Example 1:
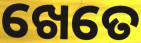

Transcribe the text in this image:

ଖେତେ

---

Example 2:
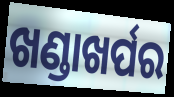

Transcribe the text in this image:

ଖଣ୍ଡାଖର୍ପର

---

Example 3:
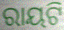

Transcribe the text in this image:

ରାୟଟି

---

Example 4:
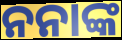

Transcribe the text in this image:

ନନାଙ୍କ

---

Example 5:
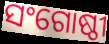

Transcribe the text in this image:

ସଂଗୋଷ୍ଠୀ